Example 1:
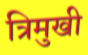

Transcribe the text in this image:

त्रिमुखी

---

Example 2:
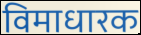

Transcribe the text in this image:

विमाधारक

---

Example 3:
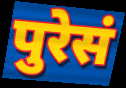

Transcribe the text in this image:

पुरेसं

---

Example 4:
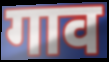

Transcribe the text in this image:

गाव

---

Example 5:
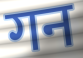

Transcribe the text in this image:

गन